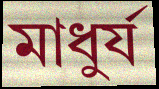
মাধুর্য